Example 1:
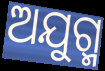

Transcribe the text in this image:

ଅଯୁଗ୍ମ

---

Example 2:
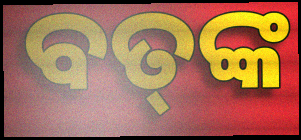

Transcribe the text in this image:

ବତ୍‍ଙ୍କ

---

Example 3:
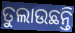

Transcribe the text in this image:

ତୁଲାଉଛନ୍ତି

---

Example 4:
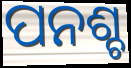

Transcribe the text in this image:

ପନଶ୍ଚ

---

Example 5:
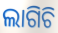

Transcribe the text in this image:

ଲାଗିଚି